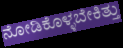
ನೋಡಿಕೊಳ್ಳಬೇಕಿತ್ತು